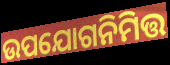
ଉପଯୋଗନିମିତ୍ତ